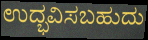
ಉದ್ಭವಿಸಬಹುದು